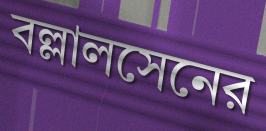
বল্লালসেনের